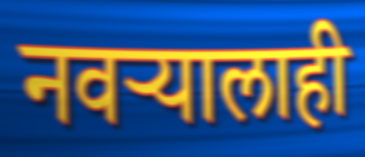
नवऱ्यालाही